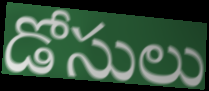
డోసులు